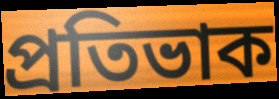
প্ৰতিভাক